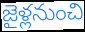
జైళ్లనుంచి